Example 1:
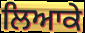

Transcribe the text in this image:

ਲਿਆਕੇ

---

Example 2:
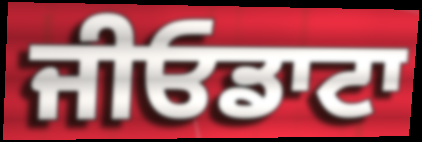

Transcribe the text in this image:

ਜੀਓਡਾਟਾ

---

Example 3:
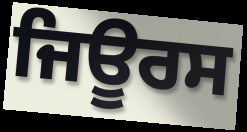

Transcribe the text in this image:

ਜਿਊਰਸ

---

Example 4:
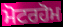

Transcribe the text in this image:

ਮੋਟਰਹੋਮ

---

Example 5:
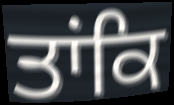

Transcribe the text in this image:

ਤਾਂਕਿ